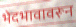
भेदभावावरून